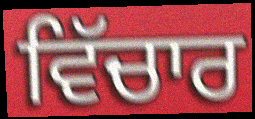
ਵਿੱਚਾਰ